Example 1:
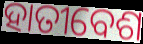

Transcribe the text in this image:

ହାତୀବେଶ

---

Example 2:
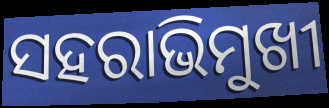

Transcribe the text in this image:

ସହରାଭିମୁଖୀ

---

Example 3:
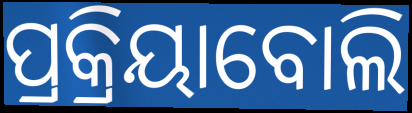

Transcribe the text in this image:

ପ୍ରକ୍ରିୟାବୋଲି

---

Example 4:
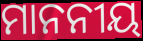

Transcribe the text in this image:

ମାନନୀୟ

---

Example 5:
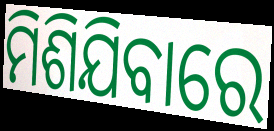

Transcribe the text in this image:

ମିଶିଯିବାରେ